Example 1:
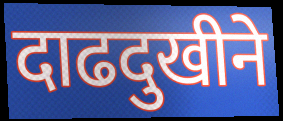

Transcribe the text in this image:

दाढदुखीने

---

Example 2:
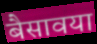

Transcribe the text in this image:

बैसावया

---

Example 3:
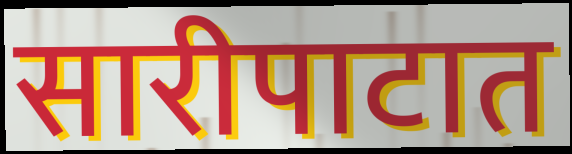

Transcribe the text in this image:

सारीपाटात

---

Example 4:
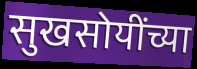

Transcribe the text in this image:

सुखसोयींच्या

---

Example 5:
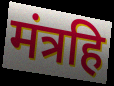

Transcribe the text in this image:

मंत्रहि